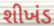
શીખંડ